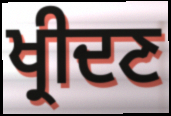
ਖ੍ਰੀਦਣ